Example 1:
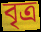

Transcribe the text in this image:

বৃত্ৰ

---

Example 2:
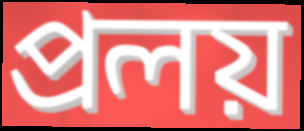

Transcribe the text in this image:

প্ৰলয়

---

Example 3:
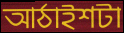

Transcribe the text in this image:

আঠাইশটা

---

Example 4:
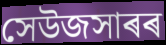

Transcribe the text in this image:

সেউজসাৰৰ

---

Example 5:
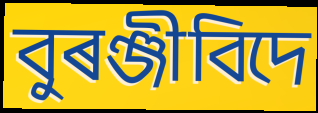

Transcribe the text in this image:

বুৰঞ্জীবিদে